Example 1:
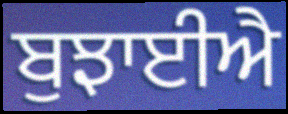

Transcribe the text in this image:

ਬੁਝਾਈਐ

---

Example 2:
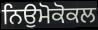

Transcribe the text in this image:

ਨਿਉਮੋਕੋਕਲ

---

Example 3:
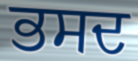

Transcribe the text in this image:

ਭਸਦ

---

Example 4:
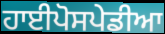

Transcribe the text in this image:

ਹਾਈਪੋਸਪੇਡੀਆ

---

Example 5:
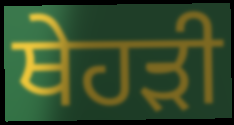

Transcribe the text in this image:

ਥੇਹੜੀ